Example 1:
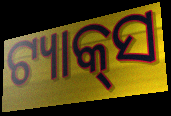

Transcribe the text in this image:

ଟ୍ୟାକ୍‌ସ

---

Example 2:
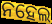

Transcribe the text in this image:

ନହେଲ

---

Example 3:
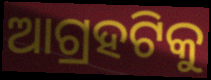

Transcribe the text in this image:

ଆଗ୍ରହଟିକୁ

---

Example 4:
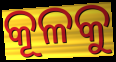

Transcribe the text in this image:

କୂଳକୁ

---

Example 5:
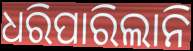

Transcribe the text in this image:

ଧରିପାରିଲାନି